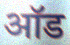
ऑड